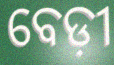
ବେଡ଼ୀ